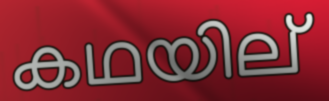
കഥയില്